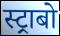
स्ट्राबो